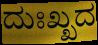
ದುಃಖ್ಖದ